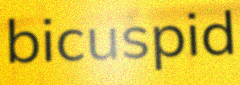
bicuspid